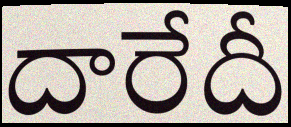
దారేదీ